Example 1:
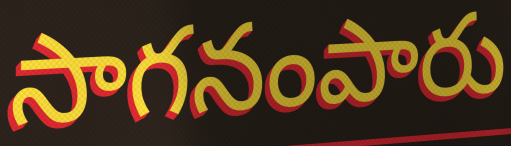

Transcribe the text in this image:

సాగనంపారు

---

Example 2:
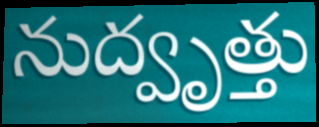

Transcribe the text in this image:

నుద్వృత్తు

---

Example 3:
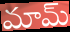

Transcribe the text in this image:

మామ్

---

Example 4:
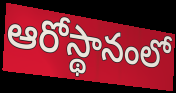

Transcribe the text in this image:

ఆరోస్థానంలో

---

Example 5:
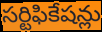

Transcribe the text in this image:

సర్టిఫికేషన్లు